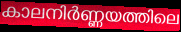
കാലനിർണ്ണയത്തിലെ